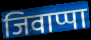
जिवाप्पा